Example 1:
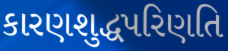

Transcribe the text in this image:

કારણશુદ્ધપરિણતિ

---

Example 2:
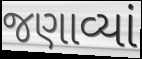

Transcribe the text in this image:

જણાવ્યાં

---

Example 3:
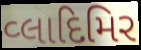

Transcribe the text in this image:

વ્લાદિમિર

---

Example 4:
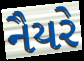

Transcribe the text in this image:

નૈયરે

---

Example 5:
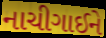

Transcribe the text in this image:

નાચીગાઈને